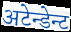
अटेन्डेन्ट